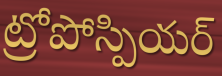
ట్రోపోస్పియర్